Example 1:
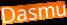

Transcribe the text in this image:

Dasmu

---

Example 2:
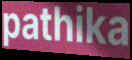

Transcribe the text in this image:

pathika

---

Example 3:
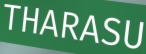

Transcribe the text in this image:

THARASU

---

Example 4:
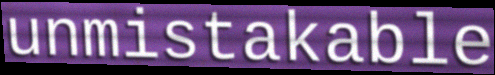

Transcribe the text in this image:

unmistakable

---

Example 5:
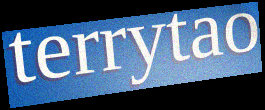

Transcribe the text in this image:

terrytao